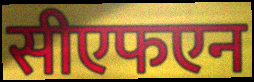
सीएफएन